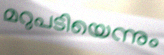
മറുപടിയെന്നും